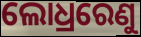
ଲୋଧ୍ରରେଣୁ